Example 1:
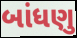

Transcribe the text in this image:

બાંધણુ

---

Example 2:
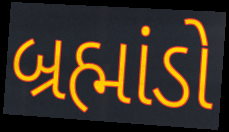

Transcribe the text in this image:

બ્રહ્માંડો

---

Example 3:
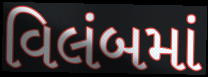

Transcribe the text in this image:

વિલંબમાં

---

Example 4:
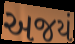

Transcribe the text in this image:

અજયં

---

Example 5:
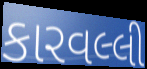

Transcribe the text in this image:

કારવલ્લી